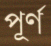
পূর্ণ